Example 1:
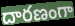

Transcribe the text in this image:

దారణంగా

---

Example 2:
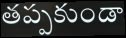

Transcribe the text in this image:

తప్పకుండా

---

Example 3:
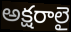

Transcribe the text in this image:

అక్షరాలై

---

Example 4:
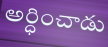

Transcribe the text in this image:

అర్ధించాడు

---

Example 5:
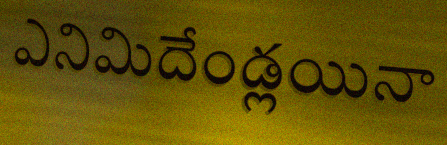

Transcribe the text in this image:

ఎనిమిదేండ్లయినా